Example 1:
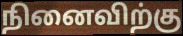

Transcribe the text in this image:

நினைவிற்கு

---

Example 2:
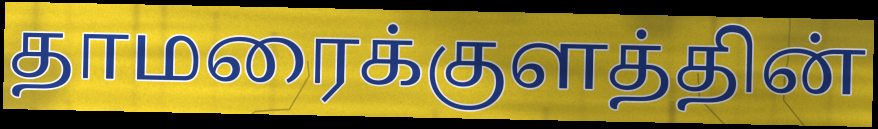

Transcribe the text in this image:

தாமரைக்குளத்தின்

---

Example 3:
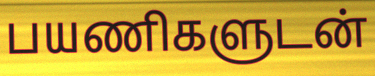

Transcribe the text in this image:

பயணிகளுடன்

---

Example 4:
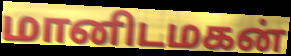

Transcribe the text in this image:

மானிடமகன்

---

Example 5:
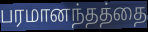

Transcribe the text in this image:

பரமானந்தத்தை